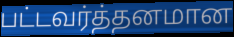
பட்டவர்த்தனமான